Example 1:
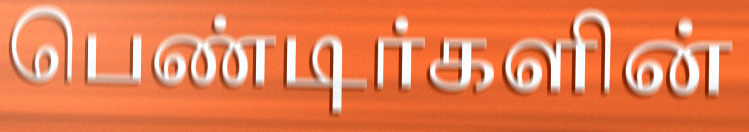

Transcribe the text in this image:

பெண்டிர்களின்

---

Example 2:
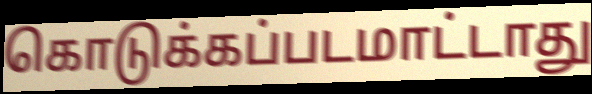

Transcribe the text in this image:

கொடுக்கப்படமாட்டாது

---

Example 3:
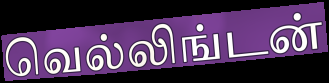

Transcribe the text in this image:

வெல்லிங்டன்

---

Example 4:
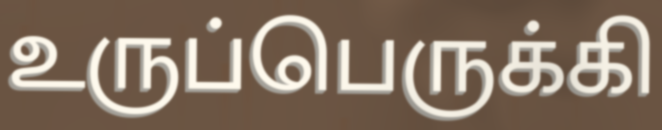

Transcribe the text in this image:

உருப்பெருக்கி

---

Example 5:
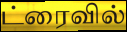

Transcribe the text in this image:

ட்ரைவில்